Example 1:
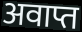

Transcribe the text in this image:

अवाप्त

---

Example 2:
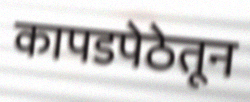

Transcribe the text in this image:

कापडपेठेतून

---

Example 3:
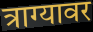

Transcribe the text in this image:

त्राग्यावर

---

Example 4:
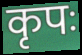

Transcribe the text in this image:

कृपः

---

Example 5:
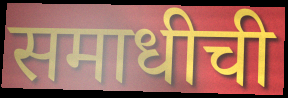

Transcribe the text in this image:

समाधीची